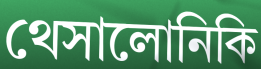
থেসালোনিকি